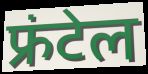
फ्रंटेल